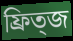
ফ্রিত্জ